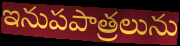
ఇనుపపాత్రలును